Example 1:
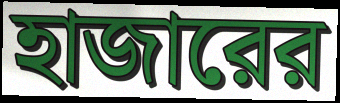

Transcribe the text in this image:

হাজারের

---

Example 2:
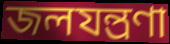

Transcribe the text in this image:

জলযন্ত্রণা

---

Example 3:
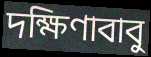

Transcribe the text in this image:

দক্ষিণাবাবু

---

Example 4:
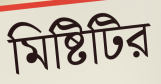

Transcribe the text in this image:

মিষ্টিটির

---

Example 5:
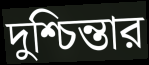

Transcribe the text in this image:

দুশ্চিন্তার